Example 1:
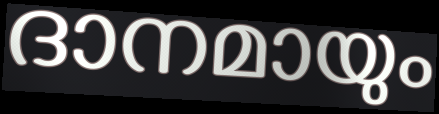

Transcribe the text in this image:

ദാനമായും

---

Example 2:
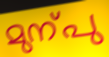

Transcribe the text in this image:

മുന്പു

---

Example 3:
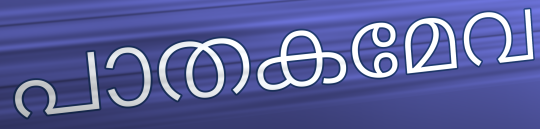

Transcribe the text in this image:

പാതകമേവ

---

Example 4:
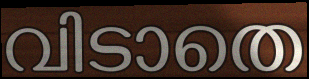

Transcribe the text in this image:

വിടാതെ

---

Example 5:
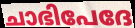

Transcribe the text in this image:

ചാഭിപേദേ